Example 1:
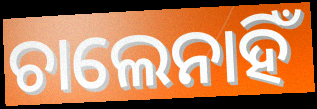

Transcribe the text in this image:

ଚାଲେନାହିଁ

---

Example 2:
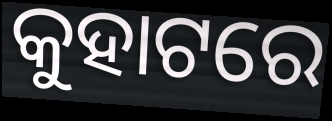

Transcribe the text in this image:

କୁହାଟରେ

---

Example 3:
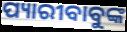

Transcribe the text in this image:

ପ୍ୟାରୀବାବୁଙ୍କ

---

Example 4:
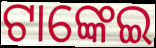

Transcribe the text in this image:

ଟାଙ୍କେଇ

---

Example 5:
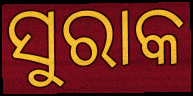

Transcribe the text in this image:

ସୁରାକ